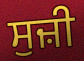
ਸੁਜ਼ੀ